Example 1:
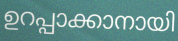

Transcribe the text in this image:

ഉറപ്പാക്കാനായി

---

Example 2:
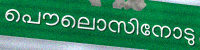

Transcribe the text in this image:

പൌലൊസിനോടു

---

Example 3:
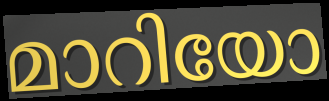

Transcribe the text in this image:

മാറിയോ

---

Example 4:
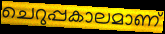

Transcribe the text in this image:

ചെറുപ്പകാലമാണ്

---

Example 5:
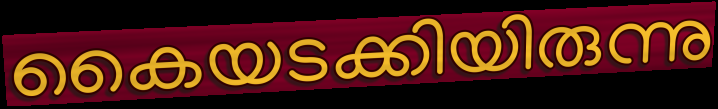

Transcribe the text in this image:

കൈയടക്കിയിരുന്നു